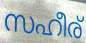
സഹീര്